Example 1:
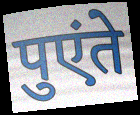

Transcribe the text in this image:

पुएंते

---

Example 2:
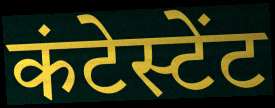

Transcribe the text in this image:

कंटेस्‍टेंट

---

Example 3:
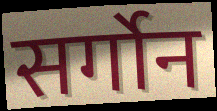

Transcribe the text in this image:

सर्गोन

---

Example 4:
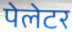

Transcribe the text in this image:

पेलेटर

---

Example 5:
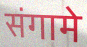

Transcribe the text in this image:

संगामे